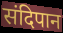
संदिपान